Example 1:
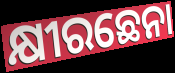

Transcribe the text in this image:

କ୍ଷୀରଛେନା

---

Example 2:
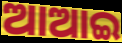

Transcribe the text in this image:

ଆଆଇ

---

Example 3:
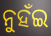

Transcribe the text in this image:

ନୁହଁଇ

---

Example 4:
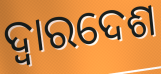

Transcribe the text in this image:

ଦ୍ୱାରଦେଶ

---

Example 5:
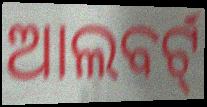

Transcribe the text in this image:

ଆଲବର୍ଟ୍